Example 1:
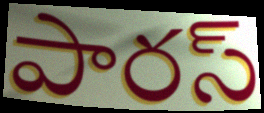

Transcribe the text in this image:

పారస్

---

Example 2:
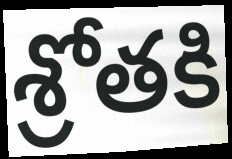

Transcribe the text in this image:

శ్రోతకి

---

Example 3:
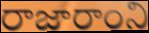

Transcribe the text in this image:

రాజారాంని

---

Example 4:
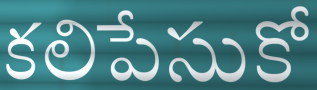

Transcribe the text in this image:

కలిపేసుకో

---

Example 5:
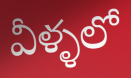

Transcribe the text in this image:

వీళ్ళలో